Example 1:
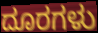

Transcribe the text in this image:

ದೂರಗಳು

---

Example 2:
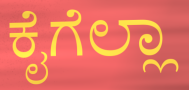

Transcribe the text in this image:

ಕೈಗೆಲ್ಲಾ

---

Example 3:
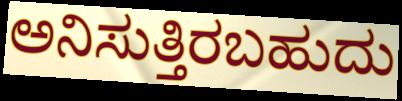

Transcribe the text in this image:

ಅನಿಸುತ್ತಿರಬಹುದು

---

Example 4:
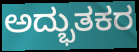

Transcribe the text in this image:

ಅದ್ಭುತಕರ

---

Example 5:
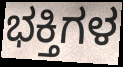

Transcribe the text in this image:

ಭಕ್ತಿಗಳ